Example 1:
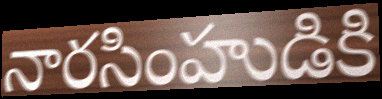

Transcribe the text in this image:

నారసింహుడికి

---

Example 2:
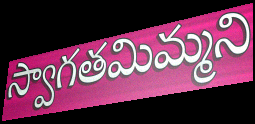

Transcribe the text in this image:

స్వాగతమిమ్మని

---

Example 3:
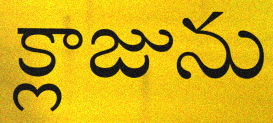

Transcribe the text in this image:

క్లాజును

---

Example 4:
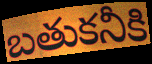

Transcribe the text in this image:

బతుకనీకి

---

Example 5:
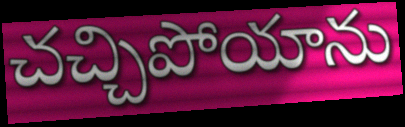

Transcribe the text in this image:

చచ్చిపోయాను